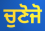
ਚੁਣੋਜੋ